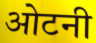
ओटनी